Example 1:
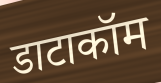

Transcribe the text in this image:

डाटाकॉम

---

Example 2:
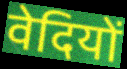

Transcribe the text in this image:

वेदियों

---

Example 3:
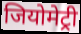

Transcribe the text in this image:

जियोमेट्री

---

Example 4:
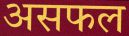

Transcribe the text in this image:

असफल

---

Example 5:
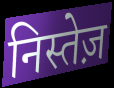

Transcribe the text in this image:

निस्तेज़